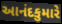
આનંદકુમારે